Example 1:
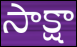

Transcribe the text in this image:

సాక్షా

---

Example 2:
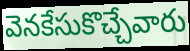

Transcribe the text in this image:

వెనకేసుకొచ్చేవారు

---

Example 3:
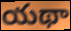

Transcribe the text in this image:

యథా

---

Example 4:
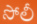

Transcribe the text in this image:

సోలీ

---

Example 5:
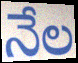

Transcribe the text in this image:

నేల